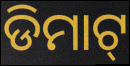
ଡିମାଟ୍